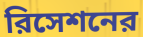
রিসেশনের